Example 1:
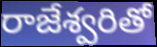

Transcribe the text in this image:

రాజేశ్వరితో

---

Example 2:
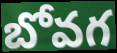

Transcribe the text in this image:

బోవగ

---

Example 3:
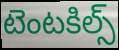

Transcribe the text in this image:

టెంటకిల్స్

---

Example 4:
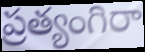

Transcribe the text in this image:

ప్రత్యంగిరా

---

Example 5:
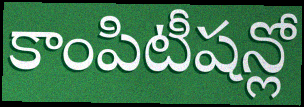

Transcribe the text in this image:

కాంపిటీషన్లో